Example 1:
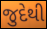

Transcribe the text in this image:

જુદેથી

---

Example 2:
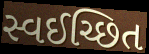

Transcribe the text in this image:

સ્વઈચ્છિત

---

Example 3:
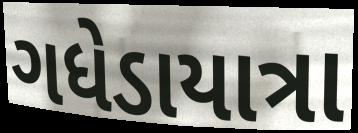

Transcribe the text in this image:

ગધેડાયાત્રા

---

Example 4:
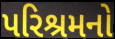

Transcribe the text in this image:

પરિશ્રમનો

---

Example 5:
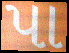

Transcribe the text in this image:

પા